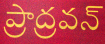
ప్రాద్రవన్